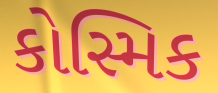
કોસ્મિક